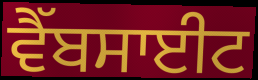
ਵੈੱਬਸਾਈਟ